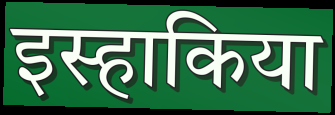
इस्हाकिया